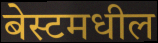
बेस्टमधील